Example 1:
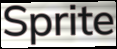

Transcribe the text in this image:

Sprite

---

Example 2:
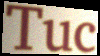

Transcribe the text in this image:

Tuc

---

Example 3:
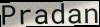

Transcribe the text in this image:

Pradan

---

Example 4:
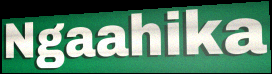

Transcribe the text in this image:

Ngaahika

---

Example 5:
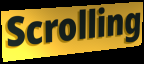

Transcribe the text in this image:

Scrolling